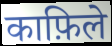
काफ़िले